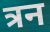
त्रन